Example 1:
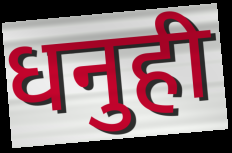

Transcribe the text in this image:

धनुही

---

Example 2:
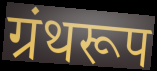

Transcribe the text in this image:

ग्रंथरूप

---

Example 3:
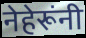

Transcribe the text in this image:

नेहेरूंनी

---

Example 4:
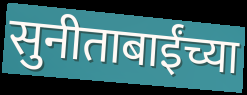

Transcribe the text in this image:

सुनीताबाईंच्या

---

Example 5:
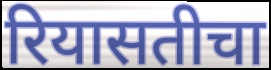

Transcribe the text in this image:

रियासतीचा